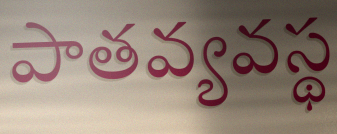
పాతవ్యవస్థ